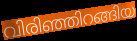
വിരിഞ്ഞിറങ്ങിയ